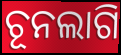
ଚୂନଲାଗି